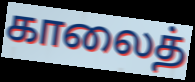
காலைத்